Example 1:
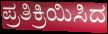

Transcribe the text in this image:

ಪ್ರತಿಕ್ರಿಯಿಸಿದ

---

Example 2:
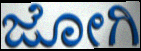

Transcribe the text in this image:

ಜೋಗಿ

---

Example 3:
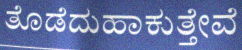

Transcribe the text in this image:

ತೊಡೆದುಹಾಕುತ್ತೇವೆ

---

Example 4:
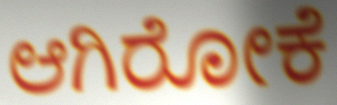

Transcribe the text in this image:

ಆಗಿರೋಕೆ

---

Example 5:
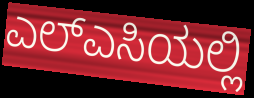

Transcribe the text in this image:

ಎಲ್ಎಸಿಯಲ್ಲಿ